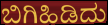
ಬಿಗಿಹಿಡಿದು